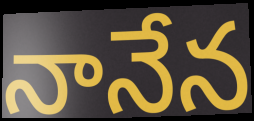
నానేన